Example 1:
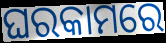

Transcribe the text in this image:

ଘରକାମରେ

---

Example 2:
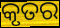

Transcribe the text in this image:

କୃତର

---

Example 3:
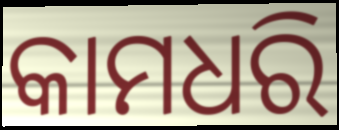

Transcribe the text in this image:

କାମଧରି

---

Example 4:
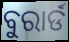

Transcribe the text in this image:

ବୁରାର୍ଡ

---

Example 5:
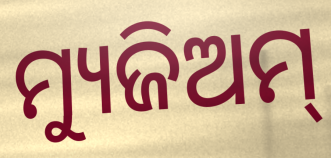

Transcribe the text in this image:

ମ୍ୟୁଜିଅମ୍